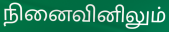
நினைவினிலும்